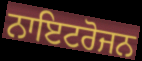
ਨਾਇਟਰੋਜਨ